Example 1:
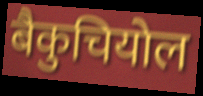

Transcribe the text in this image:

बैकुचियोल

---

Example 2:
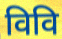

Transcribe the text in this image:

विवि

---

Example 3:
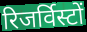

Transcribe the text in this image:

रिजर्विस्टों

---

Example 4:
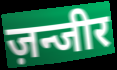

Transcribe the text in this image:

ज़न्जीर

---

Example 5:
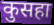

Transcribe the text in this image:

कुसहा